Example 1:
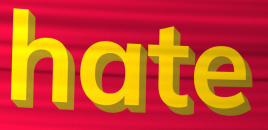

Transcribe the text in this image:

hate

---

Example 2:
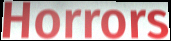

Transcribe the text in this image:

Horrors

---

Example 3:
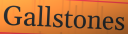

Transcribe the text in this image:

Gallstones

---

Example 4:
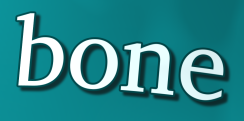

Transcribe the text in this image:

bone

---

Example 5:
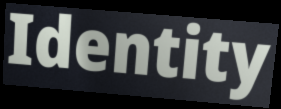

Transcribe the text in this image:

Identity